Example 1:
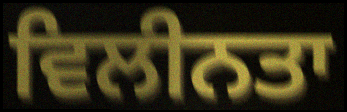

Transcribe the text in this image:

ਵਿਲੀਨਤਾ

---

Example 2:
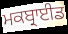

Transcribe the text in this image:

ਮਕਬ੍ਰਾਈਡ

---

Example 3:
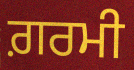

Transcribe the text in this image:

ਗ਼ਰਮੀ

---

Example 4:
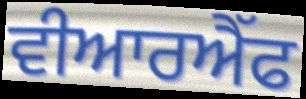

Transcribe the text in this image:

ਵੀਆਰਐੱਫ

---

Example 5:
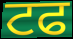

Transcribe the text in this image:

ਟਫ